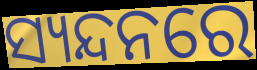
ସ୍ୟନ୍ଦନରେ